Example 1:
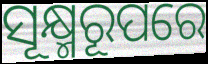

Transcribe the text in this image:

ସୂକ୍ଷ୍ମରୂପରେ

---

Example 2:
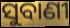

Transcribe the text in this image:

ସୁବାଣୀ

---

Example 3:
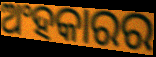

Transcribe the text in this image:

ଅଂହକାରର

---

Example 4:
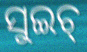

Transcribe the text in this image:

ସୁଇଚ୍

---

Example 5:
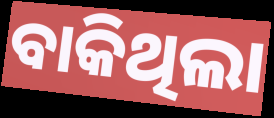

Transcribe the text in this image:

ବାକିଥିଲା